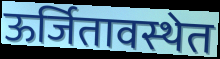
ऊर्जितावस्थेत